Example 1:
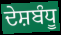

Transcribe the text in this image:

ਦੇਸ਼ਬੰਧੂ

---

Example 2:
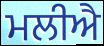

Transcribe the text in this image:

ਮਲੀਐ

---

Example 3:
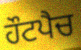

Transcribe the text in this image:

ਹੌਟਪੈਚ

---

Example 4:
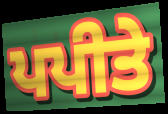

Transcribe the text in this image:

ਪਪੀਤੇ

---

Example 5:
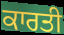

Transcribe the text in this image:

ਕਾਰਤੀ